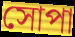
সোপা